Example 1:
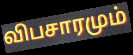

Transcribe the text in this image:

விபசாரமும்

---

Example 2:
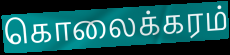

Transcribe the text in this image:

கொலைக்கரம்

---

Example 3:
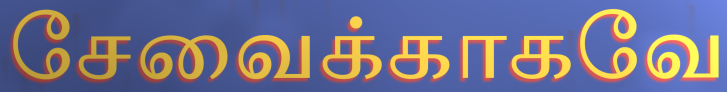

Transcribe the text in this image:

சேவைக்காகவே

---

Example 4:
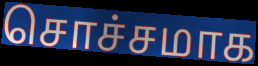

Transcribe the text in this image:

சொச்சமாக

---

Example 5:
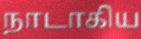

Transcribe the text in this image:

நாடாகிய